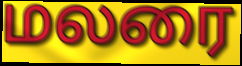
மலரை